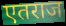
एतराज